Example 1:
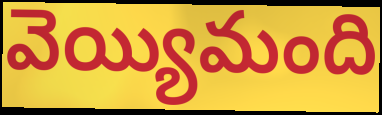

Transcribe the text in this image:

వెయ్యిమంది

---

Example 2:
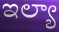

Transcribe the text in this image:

ఇల్యా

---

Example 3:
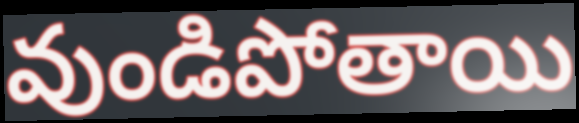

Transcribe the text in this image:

వుండిపోతాయి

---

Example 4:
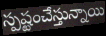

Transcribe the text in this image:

స్పష్టంచేస్తున్నాయి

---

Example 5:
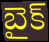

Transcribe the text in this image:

బైక్